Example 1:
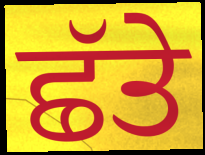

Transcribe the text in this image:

ਛੱਤੇ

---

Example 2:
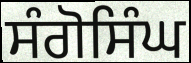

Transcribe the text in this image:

ਸੰਗੋਸਿੰਘ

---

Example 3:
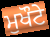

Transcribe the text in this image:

ਮੁਖੌਟੇ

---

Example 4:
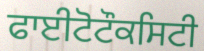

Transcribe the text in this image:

ਫਾਈਟੋਟੌਕਸਿਟੀ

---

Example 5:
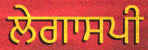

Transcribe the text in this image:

ਲੇਗਾਸਪੀ